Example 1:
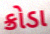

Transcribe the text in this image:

ક્રોડા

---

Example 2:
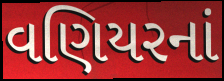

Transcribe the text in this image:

વણિયરનાં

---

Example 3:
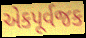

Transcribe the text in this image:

એકપૂર્વજક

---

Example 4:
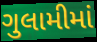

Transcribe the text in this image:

ગુલામીમાં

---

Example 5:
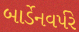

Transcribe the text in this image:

બાર્ડેનવર્પરે